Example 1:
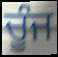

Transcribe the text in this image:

ਚੂੰਜ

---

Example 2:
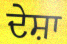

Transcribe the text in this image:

ਦੇਸ਼ਾ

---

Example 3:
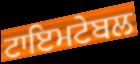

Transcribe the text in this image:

ਟਾਇਮਟੇਬਲ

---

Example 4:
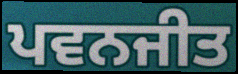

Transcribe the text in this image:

ਪਵਨਜੀਤ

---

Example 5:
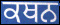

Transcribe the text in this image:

ਕਥਨ